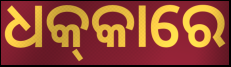
ଧକ୍‍କାରେ